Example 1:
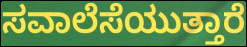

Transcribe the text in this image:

ಸವಾಲೆಸೆಯುತ್ತಾರೆ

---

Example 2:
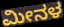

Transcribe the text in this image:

ಮೀನಳ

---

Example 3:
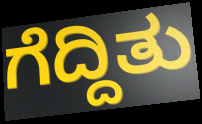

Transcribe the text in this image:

ಗೆದ್ದಿತು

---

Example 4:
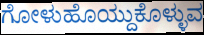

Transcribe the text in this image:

ಗೋಳುಹೊಯ್ದುಕೊಳ್ಳುವ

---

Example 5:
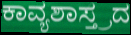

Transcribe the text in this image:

ಕಾವ್ಯಶಾಸ್ತ್ರದ